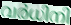
വർധിനി